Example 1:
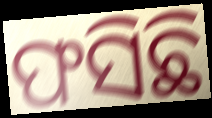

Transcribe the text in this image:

ଫସିଛି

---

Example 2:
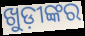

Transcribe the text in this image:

ଖୁଡ଼ୀଙ୍କର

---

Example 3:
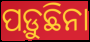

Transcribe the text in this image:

ପଡ଼ୁଛିନା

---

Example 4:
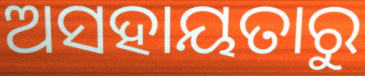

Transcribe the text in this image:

ଅସହାୟତାରୁ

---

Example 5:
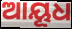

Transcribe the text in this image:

ଆୟୂଧ